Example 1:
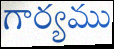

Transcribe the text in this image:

గార్యము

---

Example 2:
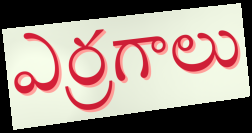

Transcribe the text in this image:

ఎర్రగాలు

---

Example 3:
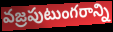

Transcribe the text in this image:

వజ్రపుటుంగరాన్ని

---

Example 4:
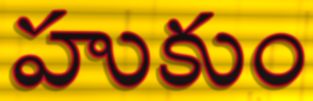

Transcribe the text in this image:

హుకుం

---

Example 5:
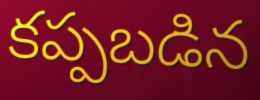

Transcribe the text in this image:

కప్పబడిన